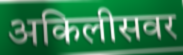
अकिलीसवर